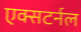
एक्सटर्नल